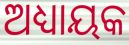
ଅଧ୍ୟାୟକ